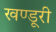
खण्डूरी